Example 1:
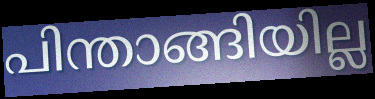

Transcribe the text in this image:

പിന്താങ്ങിയില്ല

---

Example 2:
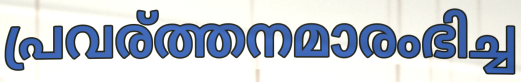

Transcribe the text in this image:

പ്രവര്ത്തനമാരംഭിച്ച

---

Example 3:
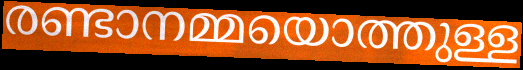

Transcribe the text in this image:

രണ്ടാനമ്മയൊത്തുള്ള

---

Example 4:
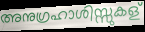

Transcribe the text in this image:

അനുഗ്രഹാശിസ്സുകള്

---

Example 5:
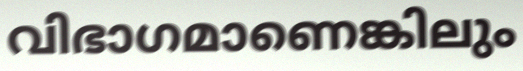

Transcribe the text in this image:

വിഭാഗമാണെങ്കിലും